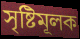
সৃষ্টিমূলক